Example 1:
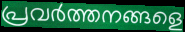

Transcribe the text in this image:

പ്രവർത്തനങ്ങളെ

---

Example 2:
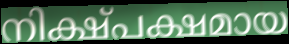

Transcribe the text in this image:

നിക്ഷ്പക്ഷമായ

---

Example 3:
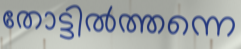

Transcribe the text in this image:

തോട്ടിൽത്തന്നെ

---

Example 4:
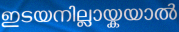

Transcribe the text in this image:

ഇടയനില്ലായ്കയാൽ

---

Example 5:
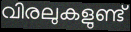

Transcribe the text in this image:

വിരലുകളുണ്ട്